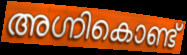
അഗ്നികൊണ്ട്